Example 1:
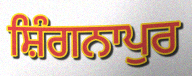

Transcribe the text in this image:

ਸ਼ਿੰਗਨਾਪੁਰ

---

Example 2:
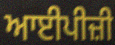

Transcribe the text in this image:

ਆਈਪੀਜ਼ੀ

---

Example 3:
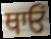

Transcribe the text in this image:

ਥਾਓਂ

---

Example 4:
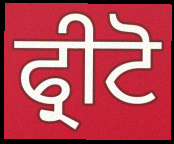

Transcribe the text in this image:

ਫ੍ਰੀਟੋ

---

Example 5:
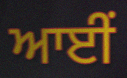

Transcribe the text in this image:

ਆਈਂ